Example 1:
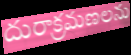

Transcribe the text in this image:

దురాక్రమణలను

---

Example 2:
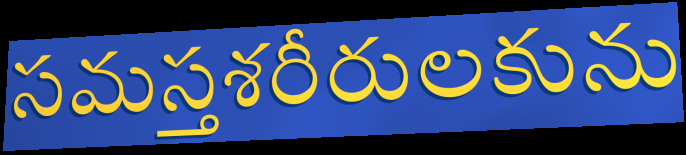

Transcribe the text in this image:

సమస్తశరీరులకును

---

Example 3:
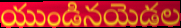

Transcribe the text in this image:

యుండినయెడల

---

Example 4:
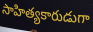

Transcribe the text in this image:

సాహిత్యకారుడుగా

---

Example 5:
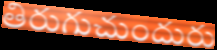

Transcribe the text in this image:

తిరుగుచుందురు